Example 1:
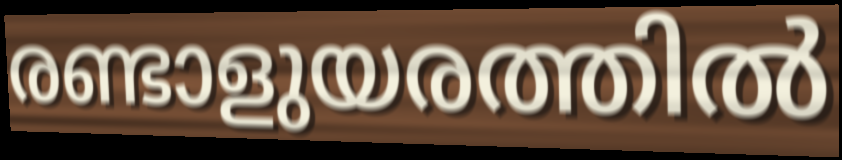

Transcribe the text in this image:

രണ്ടാളുയരത്തിൽ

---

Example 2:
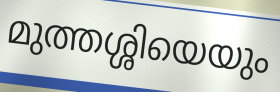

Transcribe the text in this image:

മുത്തശ്ശിയെയും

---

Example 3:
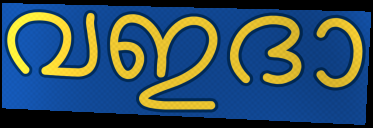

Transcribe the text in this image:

വഇദാ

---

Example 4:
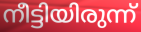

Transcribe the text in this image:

നീട്ടിയിരുന്ന്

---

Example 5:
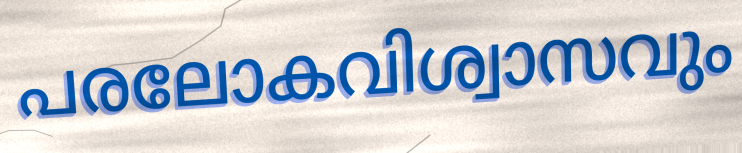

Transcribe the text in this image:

പരലോകവിശ്വാസവും